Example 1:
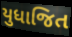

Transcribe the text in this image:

યુધાજિત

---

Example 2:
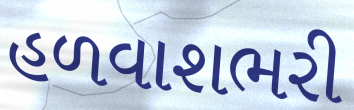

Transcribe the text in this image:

હળવાશભરી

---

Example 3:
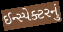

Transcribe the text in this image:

ઈન્સ્પેક્ટરનું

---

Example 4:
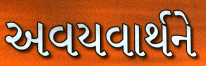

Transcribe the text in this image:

અવયવાર્થને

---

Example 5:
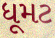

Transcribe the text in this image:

ધૂમટ